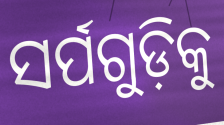
ସର୍ପଗୁଡ଼ିକୁ